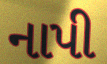
નાપી